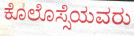
ಕೊಲೊಸ್ಸೆಯವರು